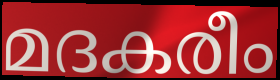
മദകരീം